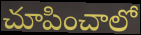
చూపించాలో